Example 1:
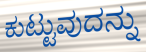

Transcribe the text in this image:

ಕುಟ್ಟುವುದನ್ನು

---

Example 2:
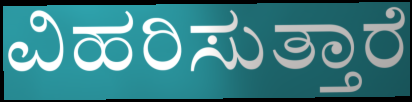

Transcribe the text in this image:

ವಿಹರಿಸುತ್ತಾರೆ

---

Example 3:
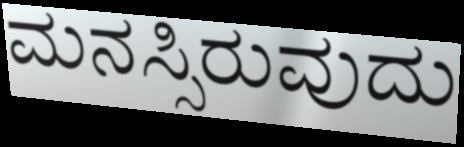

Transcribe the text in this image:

ಮನಸ್ಸಿರುವುದು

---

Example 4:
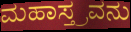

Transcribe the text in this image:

ಮಹಾಸ್ತ್ರವನು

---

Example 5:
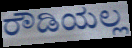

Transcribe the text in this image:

ರೌಡಿಯಲ್ಲ